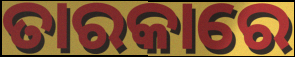
ତାରକାରେ